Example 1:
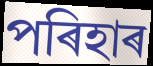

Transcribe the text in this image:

পৰিহাৰ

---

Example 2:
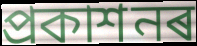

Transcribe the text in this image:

প্ৰকাশনৰ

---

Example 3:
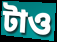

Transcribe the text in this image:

টাও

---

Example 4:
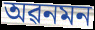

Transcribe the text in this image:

অৱনমন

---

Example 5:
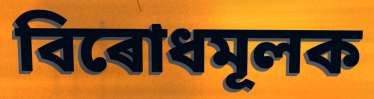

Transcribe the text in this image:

বিৰোধমূলক